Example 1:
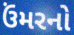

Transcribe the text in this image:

ઉંમરનો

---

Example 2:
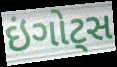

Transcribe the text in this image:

ઇંગોટ્સ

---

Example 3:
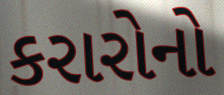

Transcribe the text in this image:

કરારોનો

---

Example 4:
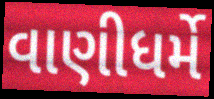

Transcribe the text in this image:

વાણીધર્મે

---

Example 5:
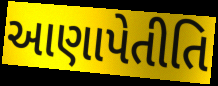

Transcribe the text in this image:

આણાપેતીતિ